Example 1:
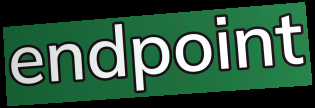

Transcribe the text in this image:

endpoint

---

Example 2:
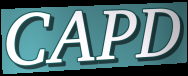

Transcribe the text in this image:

CAPD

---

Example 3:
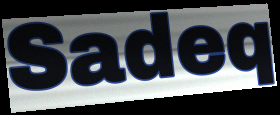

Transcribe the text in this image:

Sadeq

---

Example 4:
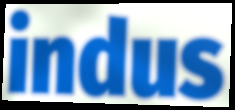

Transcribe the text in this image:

indus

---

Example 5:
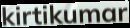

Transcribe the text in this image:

kirtikumar